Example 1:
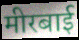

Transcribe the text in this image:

मीरबाई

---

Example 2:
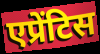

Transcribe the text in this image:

एप्रेंटिस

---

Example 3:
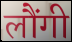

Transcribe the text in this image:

लौंगी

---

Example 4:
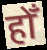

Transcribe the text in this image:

होँ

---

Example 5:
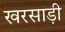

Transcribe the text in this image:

खरसाड़ी